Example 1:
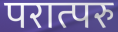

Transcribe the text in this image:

परात्परु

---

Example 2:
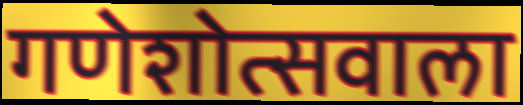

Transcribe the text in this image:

गणेशोत्सवाला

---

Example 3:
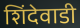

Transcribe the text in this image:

शिंदेवाडी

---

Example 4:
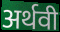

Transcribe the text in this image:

अर्थवी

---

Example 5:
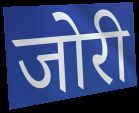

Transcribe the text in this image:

जोरी